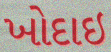
ખોદાઇ